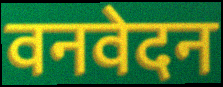
वनवेदन